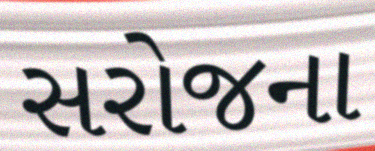
સરોજના